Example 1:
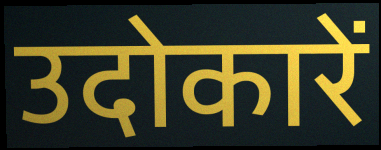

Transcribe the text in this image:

उदोकारें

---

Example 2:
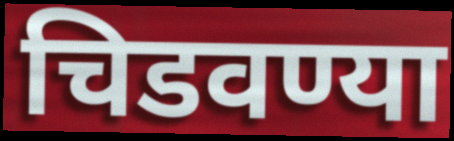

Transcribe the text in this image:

चिडवण्या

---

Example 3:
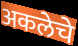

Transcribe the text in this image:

अकलेचे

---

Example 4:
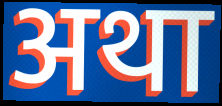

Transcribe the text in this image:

अथा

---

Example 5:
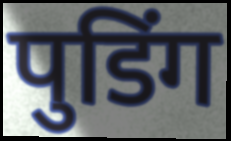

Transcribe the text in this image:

पुडिंग